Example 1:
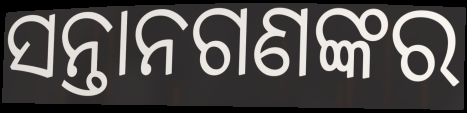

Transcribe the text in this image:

ସନ୍ତାନଗଣଙ୍କର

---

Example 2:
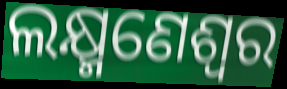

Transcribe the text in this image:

ଲକ୍ଷ୍ମଣେଶ୍ୱର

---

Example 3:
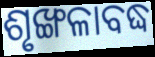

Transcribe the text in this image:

ଶୃଙ୍ଖଳାବଦ୍ଧ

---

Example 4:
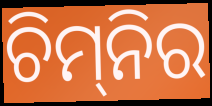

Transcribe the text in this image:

ଚିମ୍‌ନିର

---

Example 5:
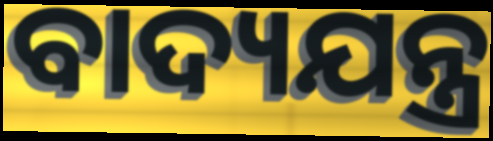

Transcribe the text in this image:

ବାଦ୍ୟଯନ୍ତ୍ର